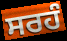
ਸਰਹੰ